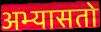
अभ्यासतो